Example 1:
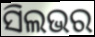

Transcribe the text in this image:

ସିଲଭର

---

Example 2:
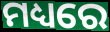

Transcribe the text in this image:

ମଧ୍ୟରେ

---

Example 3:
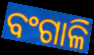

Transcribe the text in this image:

ବଂଗାଳି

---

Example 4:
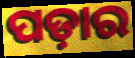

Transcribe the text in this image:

ପଡ଼ାର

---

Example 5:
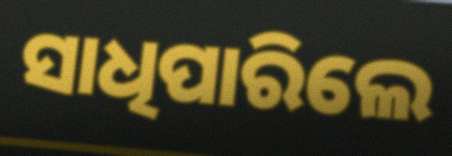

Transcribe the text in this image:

ସାଧିପାରିଲେ